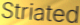
Striated